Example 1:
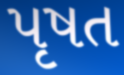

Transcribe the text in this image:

પૃષત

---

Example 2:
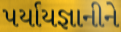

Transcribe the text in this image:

પર્યાયજ્ઞાનીને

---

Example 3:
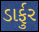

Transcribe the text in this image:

ડાર્ફુર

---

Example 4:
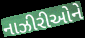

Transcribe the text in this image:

નાઝીરીઓને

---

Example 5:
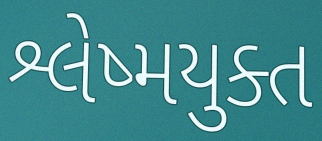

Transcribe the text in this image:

શ્લેષ્મયુક્ત